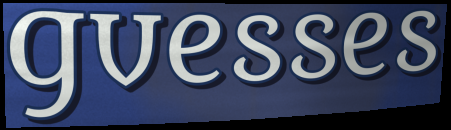
guesses